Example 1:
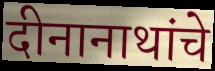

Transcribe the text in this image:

दीनानाथांचे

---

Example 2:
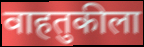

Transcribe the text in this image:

वाहतुकीला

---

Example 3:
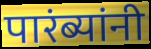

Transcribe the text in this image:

पारंब्यांनी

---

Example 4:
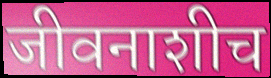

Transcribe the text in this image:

जीवनाशीच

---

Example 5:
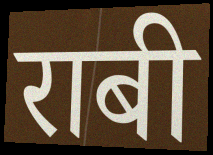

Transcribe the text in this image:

राबी